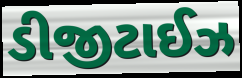
ડીજીટાઈઝ